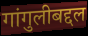
गांगुलीबद्दल